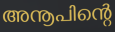
അനൂപിന്റെ